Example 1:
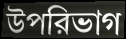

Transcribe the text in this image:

উপরিভাগ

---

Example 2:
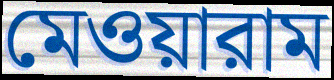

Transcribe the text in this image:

মেওয়ারাম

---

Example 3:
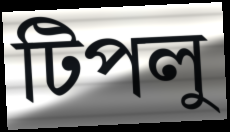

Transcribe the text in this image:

টিপলু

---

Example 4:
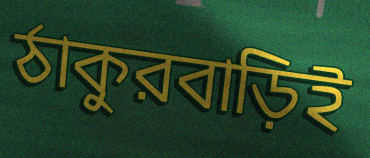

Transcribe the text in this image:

ঠাকুরবাড়িই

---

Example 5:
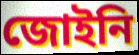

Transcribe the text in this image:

জোইনি